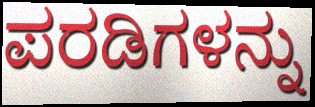
ಪರಡಿಗಳನ್ನು